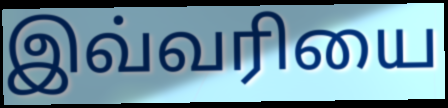
இவ்வரியை